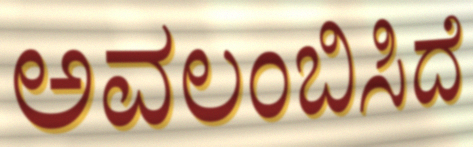
ಅವಲಂಬಿಸಿದೆ